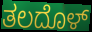
ತಲದೊಳ್